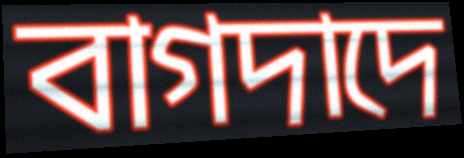
বাগদাদে